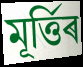
মূৰ্ত্তিৰ